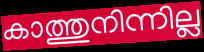
കാത്തുനിന്നില്ല